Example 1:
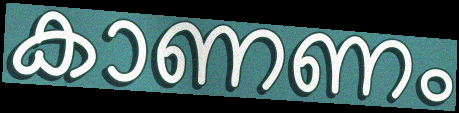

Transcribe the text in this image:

കാണണം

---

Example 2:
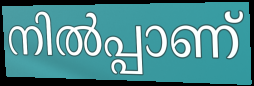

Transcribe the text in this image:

നിൽപ്പാണ്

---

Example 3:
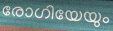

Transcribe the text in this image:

രോഗിയേയും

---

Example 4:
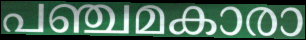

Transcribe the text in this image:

പഞ്ചമകാരാ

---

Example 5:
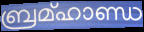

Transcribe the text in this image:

ബ്രമ്ഹാണ്ഡ